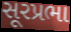
સૂરપ્રભા